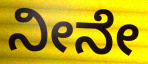
ನೀನೇ